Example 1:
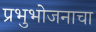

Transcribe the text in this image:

प्रभुभोजनाचा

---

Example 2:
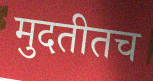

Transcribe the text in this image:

मुदतीतच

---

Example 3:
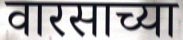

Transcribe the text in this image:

वारसाच्या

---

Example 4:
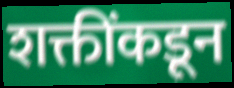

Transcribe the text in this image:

शक्तींकडून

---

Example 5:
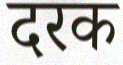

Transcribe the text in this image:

दरक